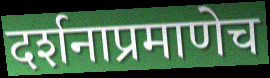
दर्शनाप्रमाणेच